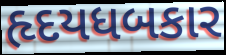
હૃદયધબકાર